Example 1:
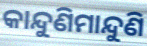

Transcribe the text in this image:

କାନ୍ଦୁଣିମାନ୍ଦୁଣି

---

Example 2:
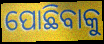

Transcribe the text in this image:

ପୋଛିବାକୁ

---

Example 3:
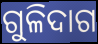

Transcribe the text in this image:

ଗୁଳିଦାଗ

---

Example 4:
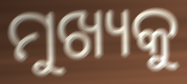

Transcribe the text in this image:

ମୁଖ୍ୟକୁ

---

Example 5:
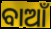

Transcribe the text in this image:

ବାଆଁ